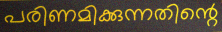
പരിണമിക്കുന്നതിന്റെ